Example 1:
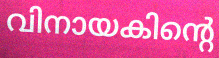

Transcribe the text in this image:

വിനായകിന്റെ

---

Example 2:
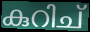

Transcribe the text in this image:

കുറിച്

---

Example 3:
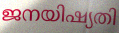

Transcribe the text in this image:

ജനയിഷ്യതി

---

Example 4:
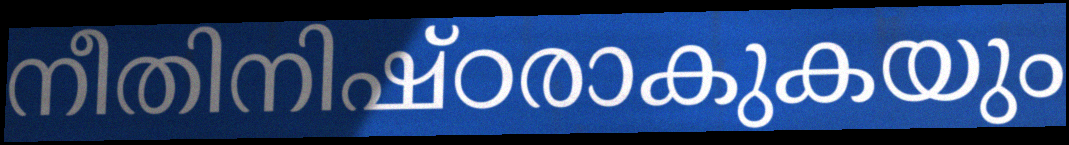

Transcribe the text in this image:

നീതിനിഷ്ഠരാകുകയും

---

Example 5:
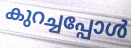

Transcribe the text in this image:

കുറച്ചപ്പോൾ